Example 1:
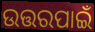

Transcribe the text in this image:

ଉତ୍ତରପାଇଁ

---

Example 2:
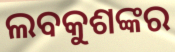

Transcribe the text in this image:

ଲବକୁଶଙ୍କର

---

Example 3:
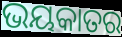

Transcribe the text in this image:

ଭୟକାତର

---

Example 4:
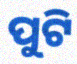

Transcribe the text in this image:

ପୁଟି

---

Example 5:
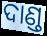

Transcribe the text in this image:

ଦାଣ୍ଡ